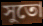
সুতো